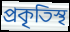
প্রকৃতিস্থ